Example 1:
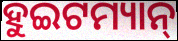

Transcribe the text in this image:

ହୁଇଟମ୍ୟାନ୍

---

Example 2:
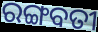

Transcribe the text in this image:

ରଙ୍ଗବତୀ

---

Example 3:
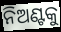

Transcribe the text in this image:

ନିଅଣ୍ଟକୁ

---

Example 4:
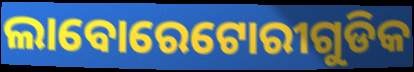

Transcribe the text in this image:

ଲାବୋରେଟୋରୀଗୁଡିକ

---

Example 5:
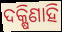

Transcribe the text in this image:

ଦକ୍ଷିଣାହି